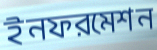
ইনফরমেশন